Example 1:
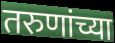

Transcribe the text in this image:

तरुणांच्या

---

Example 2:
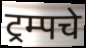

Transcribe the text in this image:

ट्रम्पचे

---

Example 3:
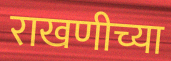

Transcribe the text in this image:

राखणीच्या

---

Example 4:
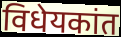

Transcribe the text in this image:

विधेयकांत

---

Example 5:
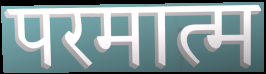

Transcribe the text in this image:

परमात्म